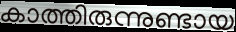
കാത്തിരുന്നുണ്ടായ